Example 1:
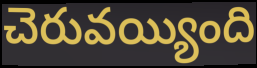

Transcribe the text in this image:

చెరువయ్యింది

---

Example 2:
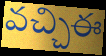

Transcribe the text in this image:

వచ్చిఈ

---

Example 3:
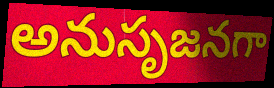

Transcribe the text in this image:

అనుసృజనగా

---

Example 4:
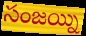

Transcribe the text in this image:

సంజయ్ని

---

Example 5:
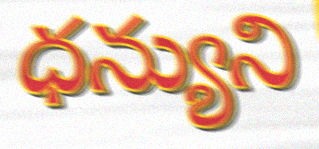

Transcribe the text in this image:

ధన్యుని